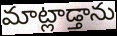
మాట్లాడ్తాను